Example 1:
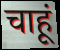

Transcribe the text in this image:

चाहूं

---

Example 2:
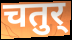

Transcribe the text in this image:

चतुर्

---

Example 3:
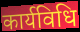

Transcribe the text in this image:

कार्यविधि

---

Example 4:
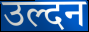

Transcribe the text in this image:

उल्दन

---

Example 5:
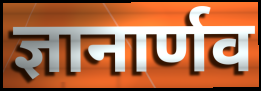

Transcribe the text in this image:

ज्ञानार्णव